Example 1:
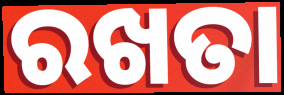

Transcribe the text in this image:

ରଖତା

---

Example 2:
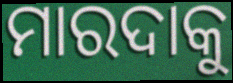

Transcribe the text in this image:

ମାରଦାକୁ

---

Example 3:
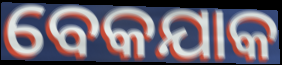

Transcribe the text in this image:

ବେକଯାକ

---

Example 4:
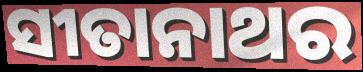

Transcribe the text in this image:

ସୀତାନାଥର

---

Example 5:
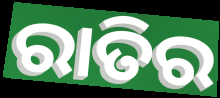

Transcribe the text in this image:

ରାତିର